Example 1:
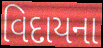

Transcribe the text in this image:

વિદાયના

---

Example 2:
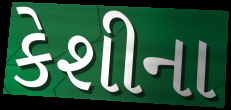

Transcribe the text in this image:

કેશીના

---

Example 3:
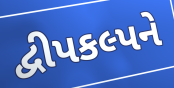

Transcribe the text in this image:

દ્વીપકલ્પને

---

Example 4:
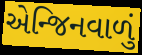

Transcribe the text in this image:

એન્જિનવાળું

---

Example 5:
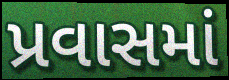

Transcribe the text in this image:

પ્રવાસમાં